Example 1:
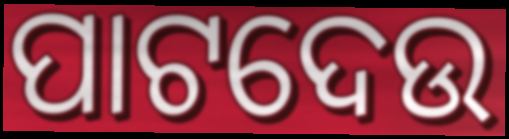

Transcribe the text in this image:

ପାଟଦେଉ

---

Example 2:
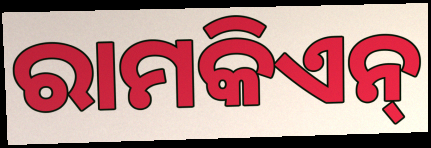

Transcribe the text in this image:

ରାମକିଏନ୍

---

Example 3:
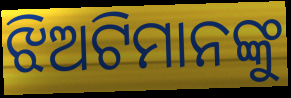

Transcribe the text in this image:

ଝିଅଟିମାନଙ୍କୁ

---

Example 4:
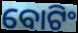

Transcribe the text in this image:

ବୋଟିଂ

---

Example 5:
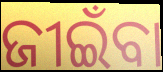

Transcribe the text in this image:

ଜୀଇଁବା